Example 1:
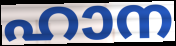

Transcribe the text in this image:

ഹാന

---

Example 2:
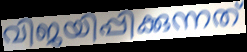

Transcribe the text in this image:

വിജയിപ്പിക്കുന്നത്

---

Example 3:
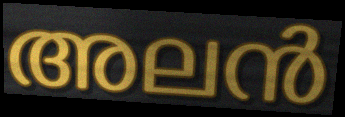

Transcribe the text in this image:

അലൻ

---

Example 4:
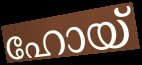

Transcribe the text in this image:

ഹോയ്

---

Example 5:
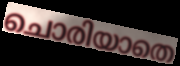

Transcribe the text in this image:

ചൊരിയാതെ